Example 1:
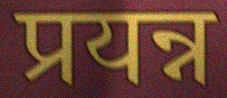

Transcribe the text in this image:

प्रयन्न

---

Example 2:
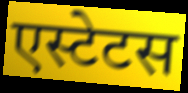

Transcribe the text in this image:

एस्टेटस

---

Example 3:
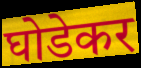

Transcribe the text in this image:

घोडेकर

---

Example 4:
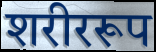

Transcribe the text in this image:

शरीररूप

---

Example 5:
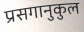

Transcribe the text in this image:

प्रसगानुकुल